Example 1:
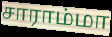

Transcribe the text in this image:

சாராம்மா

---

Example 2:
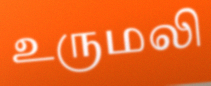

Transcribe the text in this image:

உருமலி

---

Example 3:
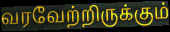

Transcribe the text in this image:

வரவேற்றிருக்கும்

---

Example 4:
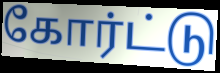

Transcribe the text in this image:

கோர்ட்டு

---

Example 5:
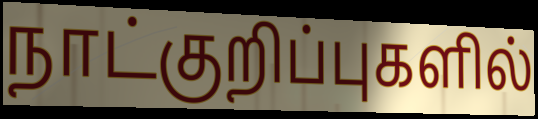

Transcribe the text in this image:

நாட்குறிப்புகளில்